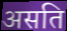
असति